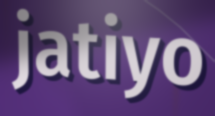
jatiyo